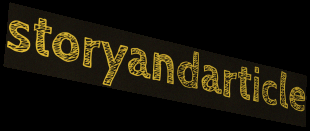
storyandarticle